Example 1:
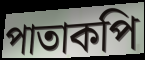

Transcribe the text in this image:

পাতাকপি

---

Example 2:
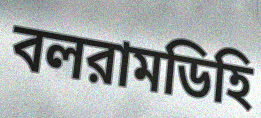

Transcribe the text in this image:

বলরামডিহি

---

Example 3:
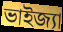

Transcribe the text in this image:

ভাইজ্যা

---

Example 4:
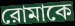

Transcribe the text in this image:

রোমাকে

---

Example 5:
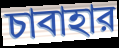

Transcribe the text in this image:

চাবাহার